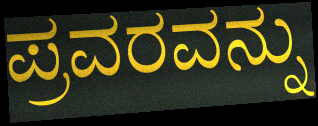
ಪ್ರವರವನ್ನು